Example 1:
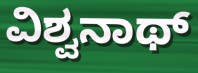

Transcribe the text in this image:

ವಿಶ್ವನಾಥ್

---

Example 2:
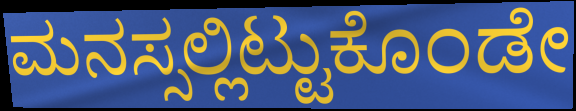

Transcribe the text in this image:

ಮನಸ್ಸಲ್ಲಿಟ್ಟುಕೊಂಡೇ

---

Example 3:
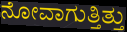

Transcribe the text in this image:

ನೋವಾಗುತ್ತಿತ್ತು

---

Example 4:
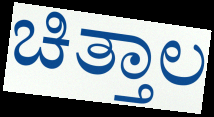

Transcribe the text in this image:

ಚಿತ್ತಾಲ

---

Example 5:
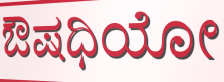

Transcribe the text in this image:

ಔಷಧಿಯೋ